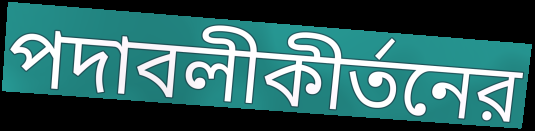
পদাবলীকীর্তনের